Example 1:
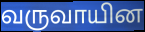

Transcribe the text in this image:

வருவாயின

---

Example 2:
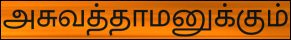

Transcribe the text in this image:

அசுவத்தாமனுக்கும்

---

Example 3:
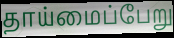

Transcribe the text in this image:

தாய்மைப்பேறு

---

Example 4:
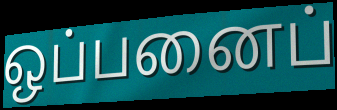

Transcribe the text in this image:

ஒப்பனைப்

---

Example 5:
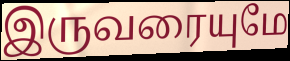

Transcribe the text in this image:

இருவரையுமே